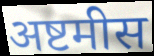
अष्टमीस